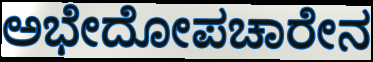
ಅಭೇದೋಪಚಾರೇನ